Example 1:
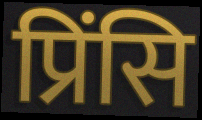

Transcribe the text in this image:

प्रिंसि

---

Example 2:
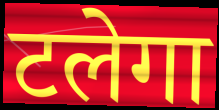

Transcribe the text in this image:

टलेगा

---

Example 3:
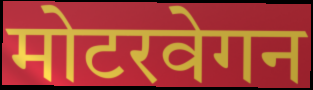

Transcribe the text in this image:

मोटरवेगन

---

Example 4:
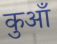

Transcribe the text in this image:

कुआँ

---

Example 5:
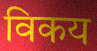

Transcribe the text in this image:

विकय